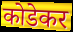
कोडेकर